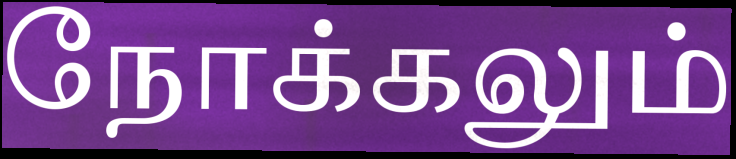
நோக்கலும்